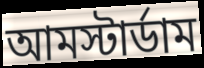
আমস্টার্ডাম